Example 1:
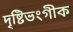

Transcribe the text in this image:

দৃষ্টিভংগীক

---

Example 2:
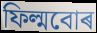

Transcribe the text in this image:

ফিল্মবোৰ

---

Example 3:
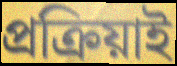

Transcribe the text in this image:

প্ৰক্ৰিয়াই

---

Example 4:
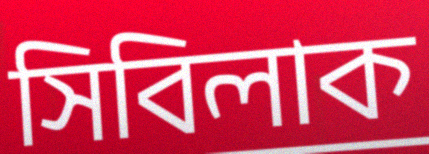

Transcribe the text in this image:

সিবিলাক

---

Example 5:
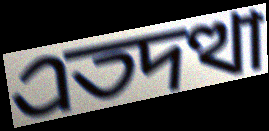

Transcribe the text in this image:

এতদত্থা